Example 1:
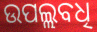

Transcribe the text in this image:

ଉପଲ୍ଲବଧି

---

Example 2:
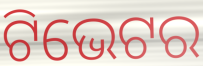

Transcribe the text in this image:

ଟିଭେଟର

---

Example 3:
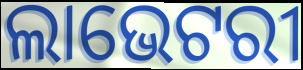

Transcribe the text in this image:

ଲାଭେଟରୀ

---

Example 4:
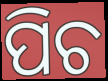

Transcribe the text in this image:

ପିଚ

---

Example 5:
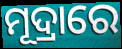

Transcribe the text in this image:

ମୂଦ୍ରାରେ